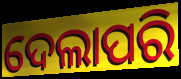
ଦେଲାପରି